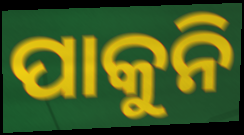
ପାକୁନି